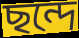
ছন্দে